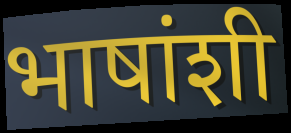
भाषांशी